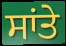
ਸਾਂਤੇ